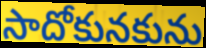
సాదోకునకును